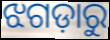
ଝଗଡ଼ାରୁ